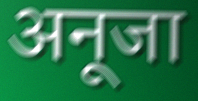
अनूजा